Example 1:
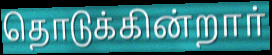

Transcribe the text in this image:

தொடுக்கின்றார்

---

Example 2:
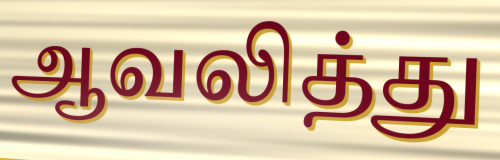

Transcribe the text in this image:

ஆவலித்து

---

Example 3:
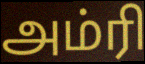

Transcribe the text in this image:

அம்ரி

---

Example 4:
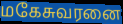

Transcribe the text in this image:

மகேசுவரனை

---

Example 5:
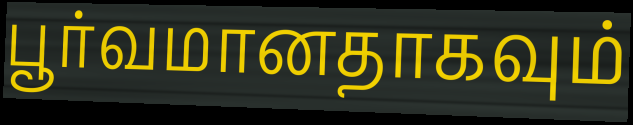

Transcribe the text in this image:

பூர்வமானதாகவும்